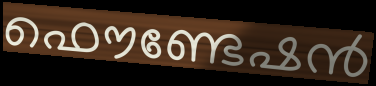
ഫൌണ്ടേഷൻ